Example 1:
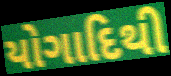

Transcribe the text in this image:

યોગાદિથી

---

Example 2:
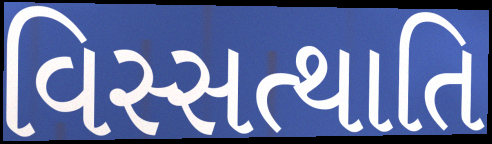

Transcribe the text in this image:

વિસ્સત્થાતિ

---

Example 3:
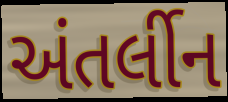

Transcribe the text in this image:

અંતર્લીન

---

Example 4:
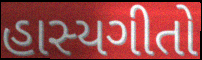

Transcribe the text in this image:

હાસ્યગીતો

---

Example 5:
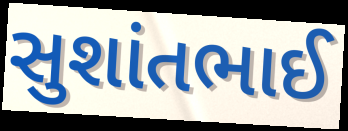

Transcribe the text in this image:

સુશાંતભાઈ